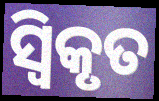
ସ୍ୱିକୃତ